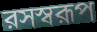
রসস্বরূপ